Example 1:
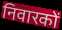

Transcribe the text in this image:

निवारकों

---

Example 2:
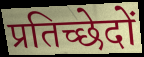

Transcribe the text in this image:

प्रतिच्छेदों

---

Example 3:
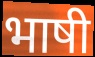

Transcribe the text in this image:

भाषी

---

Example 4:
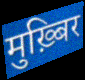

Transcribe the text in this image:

मुख़्बिर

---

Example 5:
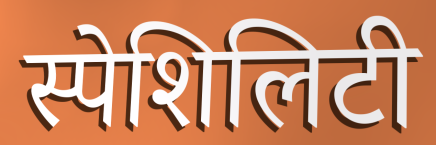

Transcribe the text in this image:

स्पेशिलिटी